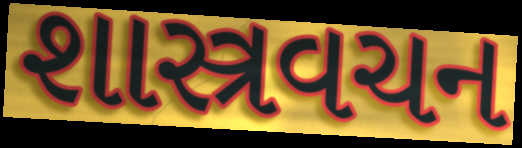
શાસ્ત્રવચન